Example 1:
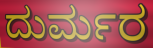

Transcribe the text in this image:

ದುರ್ಮರ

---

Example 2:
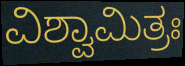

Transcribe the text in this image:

ವಿಶ್ವಾಮಿತ್ರಃ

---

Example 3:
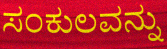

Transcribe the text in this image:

ಸಂಕುಲವನ್ನು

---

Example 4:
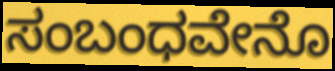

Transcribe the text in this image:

ಸಂಬಂಧವೇನೊ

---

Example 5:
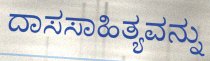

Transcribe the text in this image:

ದಾಸಸಾಹಿತ್ಯವನ್ನು